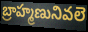
బ్రాహ్మణునివలె